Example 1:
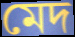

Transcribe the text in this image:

মেদ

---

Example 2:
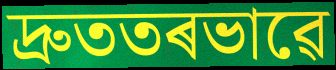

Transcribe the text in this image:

দ্ৰুততৰভাৱে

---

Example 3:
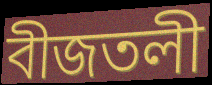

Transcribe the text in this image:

বীজতলী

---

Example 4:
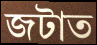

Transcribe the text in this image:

জটাত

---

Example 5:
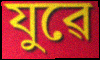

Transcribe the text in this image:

যুৱে